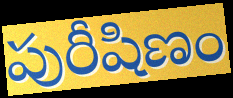
పురీషిణం